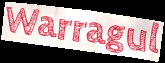
Warragul